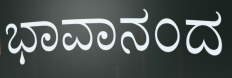
ಭಾವಾನಂದ